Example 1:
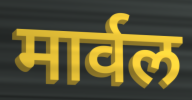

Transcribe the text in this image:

मार्वल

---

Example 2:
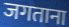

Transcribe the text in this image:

जगताना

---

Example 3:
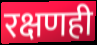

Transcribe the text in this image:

रक्षणही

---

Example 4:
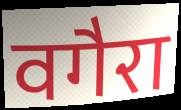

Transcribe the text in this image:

वगैरा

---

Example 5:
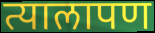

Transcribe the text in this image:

त्यालापण